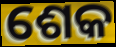
ଶେକ